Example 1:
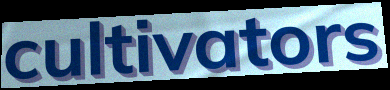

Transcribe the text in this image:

cultivators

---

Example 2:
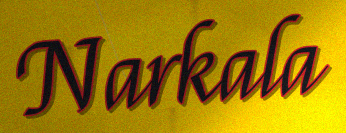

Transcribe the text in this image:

Narkala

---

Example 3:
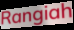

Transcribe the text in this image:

Rangiah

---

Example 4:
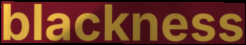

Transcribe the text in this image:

blackness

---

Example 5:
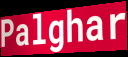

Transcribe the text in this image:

Palghar